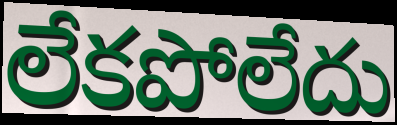
లేకపోలేదు